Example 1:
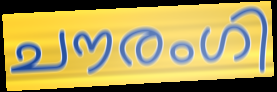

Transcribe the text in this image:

ചൗരംഗി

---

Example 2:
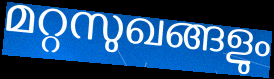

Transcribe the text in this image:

മറ്റസുഖങ്ങളും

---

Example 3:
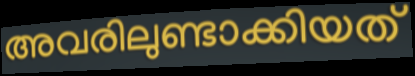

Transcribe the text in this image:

അവരിലുണ്ടാക്കിയത്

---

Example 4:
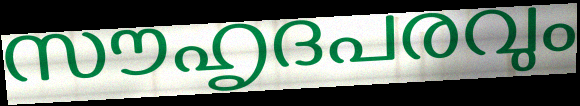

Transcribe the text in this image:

സൗഹൃദപരവും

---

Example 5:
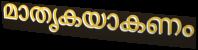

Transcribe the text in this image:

മാതൃകയാകണം